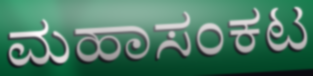
ಮಹಾಸಂಕಟ